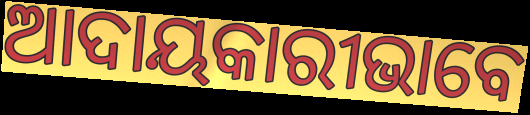
ଆଦାୟକାରୀଭାବେ